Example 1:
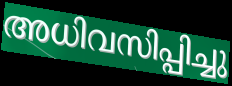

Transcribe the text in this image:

അധിവസിപ്പിച്ചു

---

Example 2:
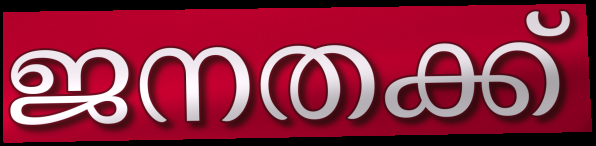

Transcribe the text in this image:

ജനതക്ക്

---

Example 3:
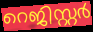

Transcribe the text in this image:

റെജിസ്റ്റർ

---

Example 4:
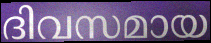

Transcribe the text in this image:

ദിവസമായ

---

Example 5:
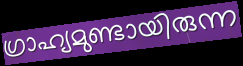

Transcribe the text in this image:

ഗ്രാഹ്യമുണ്ടായിരുന്ന